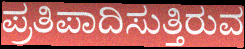
ಪ್ರತಿಪಾದಿಸುತ್ತಿರುವ